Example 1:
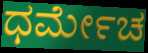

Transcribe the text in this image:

ಧರ್ಮೇಚ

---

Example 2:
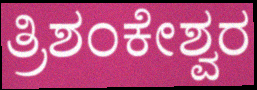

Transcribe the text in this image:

ತ್ರಿಶಂಕೇಶ್ವರ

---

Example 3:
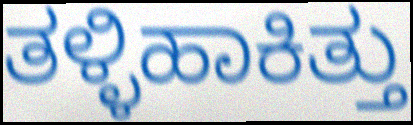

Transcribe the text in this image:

ತಳ್ಳಿಹಾಕಿತ್ತು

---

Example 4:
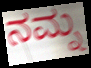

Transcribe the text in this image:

ನಮ್ನ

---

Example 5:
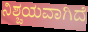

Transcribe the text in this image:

ನಿಶ್ಚಯವಾಗಿದೆ